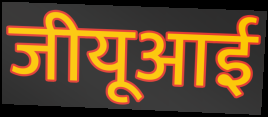
जीयूआई